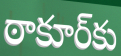
ఠాకూర్‌కు